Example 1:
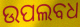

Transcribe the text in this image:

ଉପଲବଧ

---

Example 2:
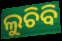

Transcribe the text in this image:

ଲୁଚିବି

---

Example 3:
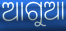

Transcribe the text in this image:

ଆଗୁଆ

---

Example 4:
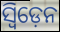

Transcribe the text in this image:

ସ୍ବିଡ଼େନ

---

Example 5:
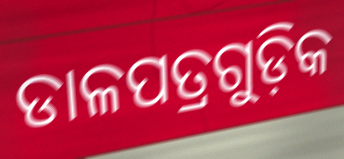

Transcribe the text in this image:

ଡାଳପତ୍ରଗୁଡ଼ିକ